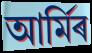
আৰ্মিৰ